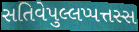
સતિવેપુલ્લપ્પત્તસ્સ